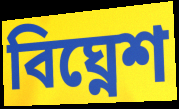
বিঘ্নেশ